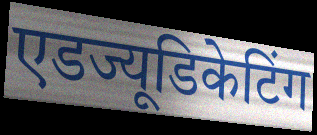
एडज्यूडिकेटिंग